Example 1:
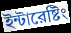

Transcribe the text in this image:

ইন্টারেষ্টিং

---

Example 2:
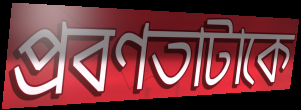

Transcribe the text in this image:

প্রবণতাটাকে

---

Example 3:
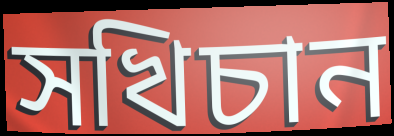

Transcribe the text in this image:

সখিচান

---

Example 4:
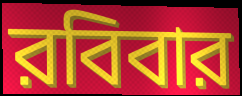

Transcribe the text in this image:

রবিবার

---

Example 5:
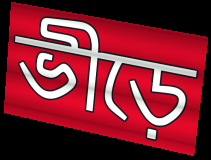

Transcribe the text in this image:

ভীড়ে